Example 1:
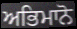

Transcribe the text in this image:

ਅਭਿਮਾਨੋ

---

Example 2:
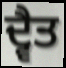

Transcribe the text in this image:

ਦ੍ਵੈਤ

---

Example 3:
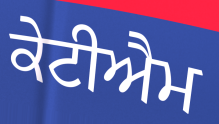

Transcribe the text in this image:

ਕੇਟੀਐਮ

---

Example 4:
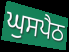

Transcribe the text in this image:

ਘੁਸਪੈਠ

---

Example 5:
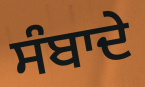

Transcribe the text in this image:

ਸੰਬਾਦੇ